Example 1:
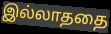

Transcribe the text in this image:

இல்லாததை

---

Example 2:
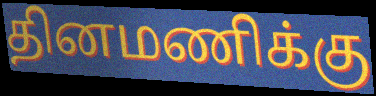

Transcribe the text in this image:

தினமணிக்கு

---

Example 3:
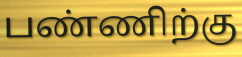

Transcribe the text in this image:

பண்ணிற்கு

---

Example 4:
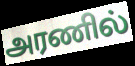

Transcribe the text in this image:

அரணில்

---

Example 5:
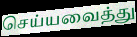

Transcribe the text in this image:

செய்யவைத்து